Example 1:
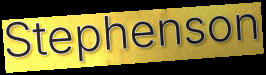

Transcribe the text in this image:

Stephenson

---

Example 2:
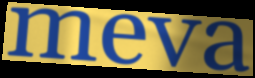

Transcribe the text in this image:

meva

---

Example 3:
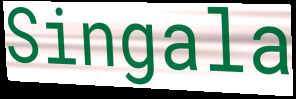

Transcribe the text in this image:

Singala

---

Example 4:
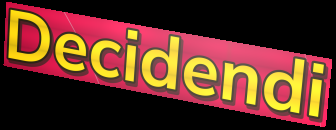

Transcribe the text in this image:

Decidendi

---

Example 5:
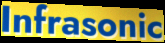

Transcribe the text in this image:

Infrasonic